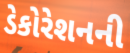
ડેકોરેશનની